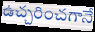
ఉచ్చరించగానే